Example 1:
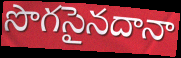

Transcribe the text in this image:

సొగసైనదానా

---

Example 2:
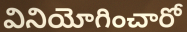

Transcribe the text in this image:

వినియోగించారో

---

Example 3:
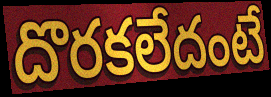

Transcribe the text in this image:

దొరకలేదంటే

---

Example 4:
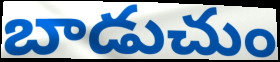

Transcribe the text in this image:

బాడుచుం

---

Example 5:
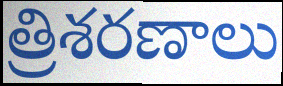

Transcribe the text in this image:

త్రిశరణాలు